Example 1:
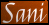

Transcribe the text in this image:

Sani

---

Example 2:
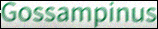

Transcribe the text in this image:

Gossampinus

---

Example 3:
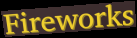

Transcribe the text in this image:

Fireworks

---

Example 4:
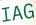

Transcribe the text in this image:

IAG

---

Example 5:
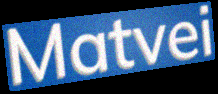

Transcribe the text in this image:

Matvei